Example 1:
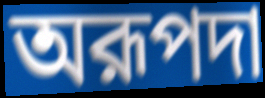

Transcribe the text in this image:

অরূপদা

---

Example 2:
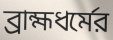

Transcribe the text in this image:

ব্রাহ্মধর্মের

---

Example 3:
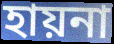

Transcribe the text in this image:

হায়না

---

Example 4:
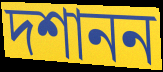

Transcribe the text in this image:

দশানন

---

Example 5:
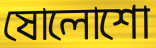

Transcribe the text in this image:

ষোলোশো